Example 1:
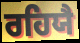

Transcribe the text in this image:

ਰਹਿਯੈ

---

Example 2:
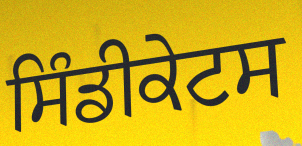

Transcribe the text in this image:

ਸਿੰਡੀਕੇਟਸ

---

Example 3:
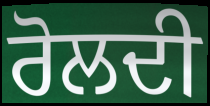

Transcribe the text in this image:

ਰੋਲਦੀ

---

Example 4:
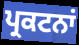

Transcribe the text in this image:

ਪ੍ਰਕਟਨਾਂ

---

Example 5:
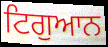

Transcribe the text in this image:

ਟਿਗੁਆਨ